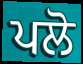
ਪਲੋ